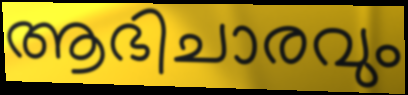
ആഭിചാരവും